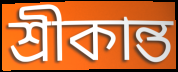
শ্রীকান্ত